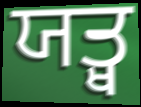
ਯਤ੍ਥ